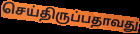
செய்திருப்பதாவது